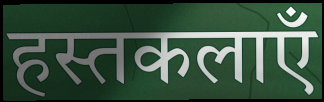
हस्तकलाएँ